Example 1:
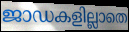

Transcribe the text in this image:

ജാഡകളില്ലാതെ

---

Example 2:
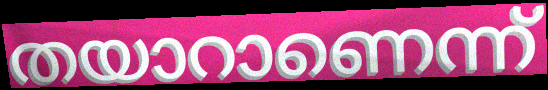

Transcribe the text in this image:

തയാറാണെന്ന്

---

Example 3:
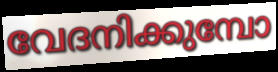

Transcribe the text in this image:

വേദനിക്കുമ്പോ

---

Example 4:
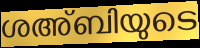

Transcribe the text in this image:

ശഅ്ബിയുടെ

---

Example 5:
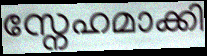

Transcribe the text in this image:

സ്നേഹമാക്കി